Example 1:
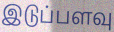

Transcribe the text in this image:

இடுப்பளவு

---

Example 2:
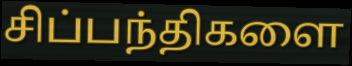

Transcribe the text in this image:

சிப்பந்திகளை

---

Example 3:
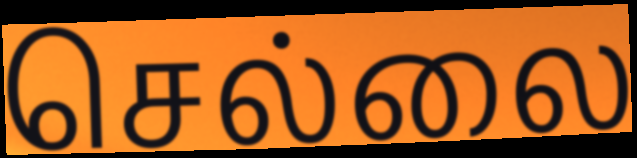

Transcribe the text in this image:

செல்லை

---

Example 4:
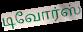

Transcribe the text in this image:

டிவோர்ஸ்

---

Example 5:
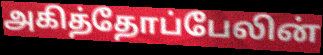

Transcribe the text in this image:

அகித்தோப்பேலின்